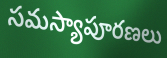
సమస్యాపూరణలు